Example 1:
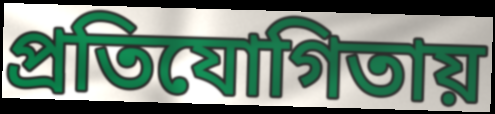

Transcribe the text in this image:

প্রতিযোগিতায়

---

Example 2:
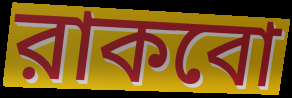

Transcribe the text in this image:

রাকবো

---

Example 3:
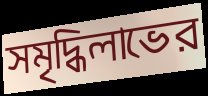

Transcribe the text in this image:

সমৃদ্ধিলাভের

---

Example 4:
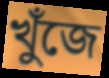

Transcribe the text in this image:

খুঁজে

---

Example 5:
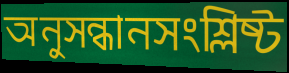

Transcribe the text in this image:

অনুসন্ধানসংশ্লিষ্ট